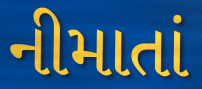
નીમાતાં